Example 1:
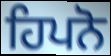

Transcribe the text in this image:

ਹਿਪਨੋ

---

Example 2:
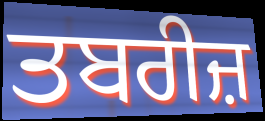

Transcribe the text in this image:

ਤਬਰੀਜ਼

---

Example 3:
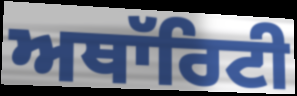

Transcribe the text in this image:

ਅਥਾੱਰਿਟੀ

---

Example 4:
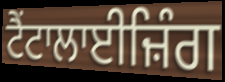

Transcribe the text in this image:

ਟੈਂਟਾਲਾਈਜ਼ਿੰਗ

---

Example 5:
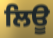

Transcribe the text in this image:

ਲਿਊ